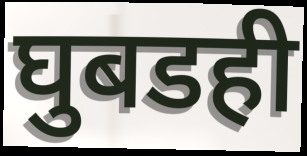
घुबडही